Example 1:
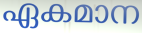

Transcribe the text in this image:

ഏകമാന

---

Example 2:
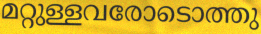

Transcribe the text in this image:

മറ്റുള്ളവരോടൊത്തു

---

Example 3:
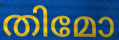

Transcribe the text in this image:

തിമോ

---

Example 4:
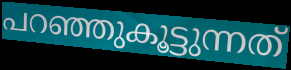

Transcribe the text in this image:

പറഞ്ഞുകൂട്ടുന്നത്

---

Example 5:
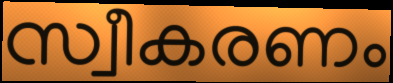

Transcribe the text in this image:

സ്വീകരണം